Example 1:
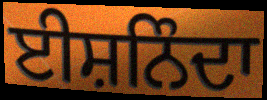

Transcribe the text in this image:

ਈਸ਼ਨਿੰਦਾ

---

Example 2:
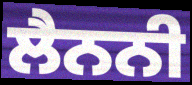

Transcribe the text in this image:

ਲੈਨਨੀ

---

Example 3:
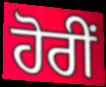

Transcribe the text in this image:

ਹੋਰੀਂ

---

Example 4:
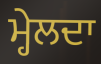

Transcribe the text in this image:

ਮ੍ਹੇਲਦਾ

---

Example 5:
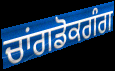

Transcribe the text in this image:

ਚਾਂਗਡੋਕਗੰਗ